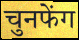
चुनफेंग